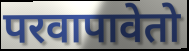
परवापावेतो